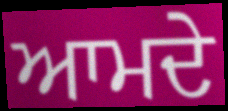
ਆਮਦੇ